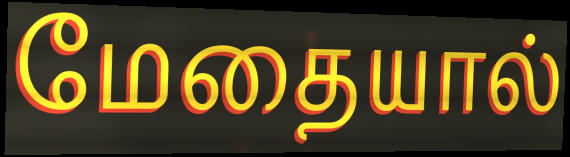
மேதையால்